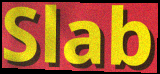
Slab